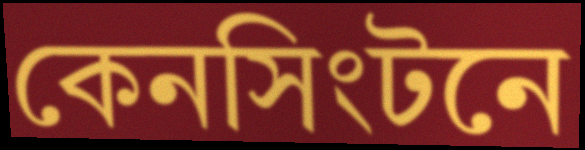
কেনসিংটনে